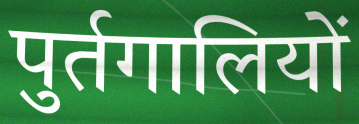
पुर्तगालियों